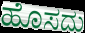
ಹೊಸದು